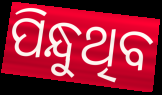
ପିନ୍ଧୁଥିବ